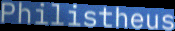
Philistheus